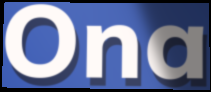
Ona